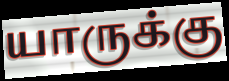
யாருக்கு